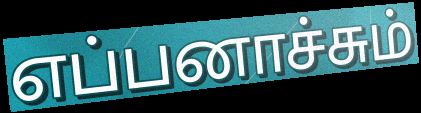
எப்பனாச்சும்